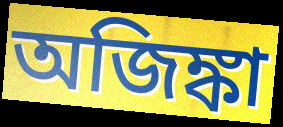
অজিঙ্কা